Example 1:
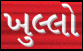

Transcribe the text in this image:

ખુલ્લો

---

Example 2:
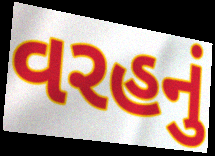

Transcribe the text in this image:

વરહનું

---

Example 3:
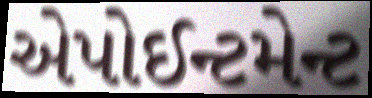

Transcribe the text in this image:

એપોઈન્ટમેન્ટ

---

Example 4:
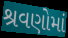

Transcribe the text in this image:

શ્રવણોમાં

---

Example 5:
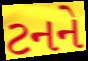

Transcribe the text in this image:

ટનને